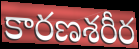
కారణశరీర